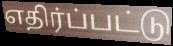
எதிர்ப்பட்டு